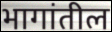
भागांतील